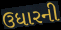
ઉધારની